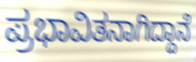
ಪ್ರಭಾವಿತನಾಗಿದ್ದಾನೆ